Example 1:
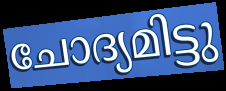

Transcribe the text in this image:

ചോദ്യമിട്ടു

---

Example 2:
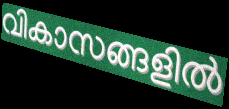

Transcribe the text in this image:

വികാസങ്ങളിൽ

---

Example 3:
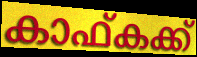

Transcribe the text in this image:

കാഫ്കക്ക്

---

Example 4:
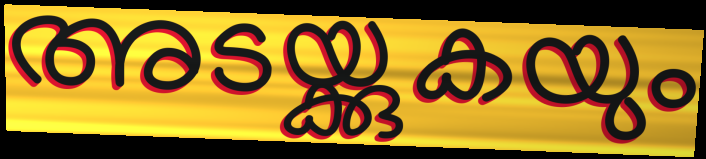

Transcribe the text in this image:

അടയ്ക്കുകയും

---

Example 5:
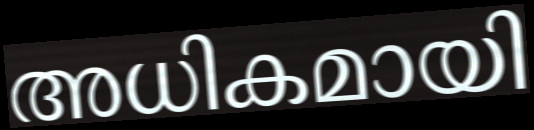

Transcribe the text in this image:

അധികമായി